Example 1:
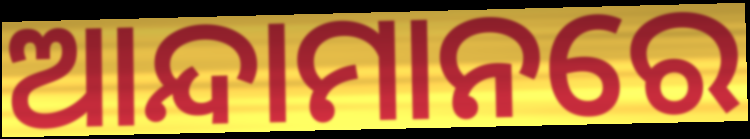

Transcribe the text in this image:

ଆନ୍ଦାମାନରେ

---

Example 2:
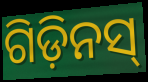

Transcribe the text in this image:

ଗିଡ଼ିନସ୍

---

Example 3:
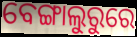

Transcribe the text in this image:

ବେଙ୍ଗାଲୁରୁରେ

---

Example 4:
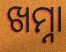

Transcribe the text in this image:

ଖମ୍ନା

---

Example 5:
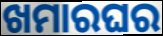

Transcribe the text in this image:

ଖମାରଘର